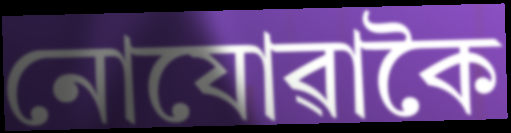
নোযোৱাকৈ